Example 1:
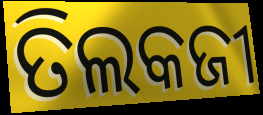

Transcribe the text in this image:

ତିଲକଜୀ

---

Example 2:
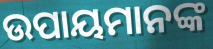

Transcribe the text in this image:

ଉପାୟମାନଙ୍କ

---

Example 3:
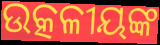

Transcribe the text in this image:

ଉତ୍କଳୀୟଙ୍କ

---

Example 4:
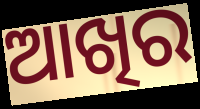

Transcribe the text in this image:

ଆଖିର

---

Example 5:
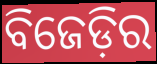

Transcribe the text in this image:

ବିଜେଡ଼ିର